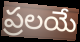
ప్రలయే